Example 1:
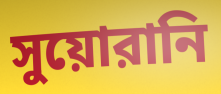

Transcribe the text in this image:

সুয়োরানি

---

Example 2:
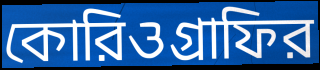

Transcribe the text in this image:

কোরিওগ্রাফির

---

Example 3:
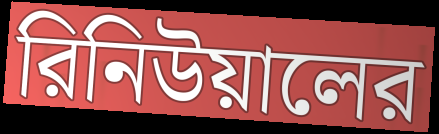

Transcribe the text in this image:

রিনিউয়ালের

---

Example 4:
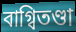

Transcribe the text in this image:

বাগ্বিতণ্ডা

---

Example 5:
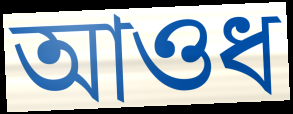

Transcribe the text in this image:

আওধ